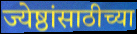
ज्येष्ठांसाठीच्या